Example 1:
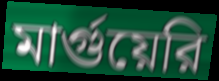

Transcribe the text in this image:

মার্গুয়েরি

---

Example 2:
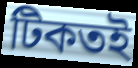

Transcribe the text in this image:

টিকতই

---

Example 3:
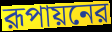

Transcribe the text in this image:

রূপায়নের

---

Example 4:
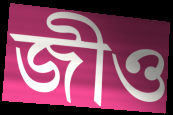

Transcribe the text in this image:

জীও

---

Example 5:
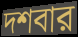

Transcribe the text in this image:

দশবার